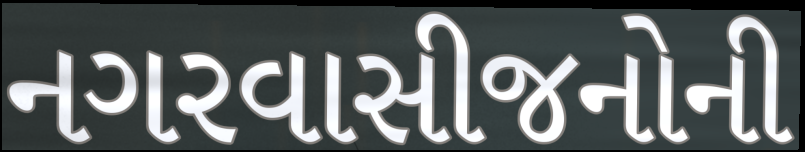
નગરવાસીજનોની